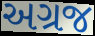
અગ્રજ